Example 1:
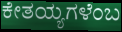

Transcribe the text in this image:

ಕೇತಯ್ಯಗಳೆಂಬ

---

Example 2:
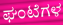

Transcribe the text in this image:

ಘಂಟೆಗಳ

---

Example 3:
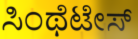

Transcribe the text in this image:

ಸಿಂಥೆಟೇಸ್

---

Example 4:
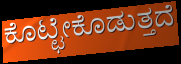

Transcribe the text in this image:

ಕೊಟ್ಟೇಕೊಡುತ್ತದೆ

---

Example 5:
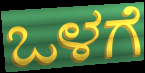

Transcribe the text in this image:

ಒಳಗೆ